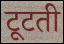
टूटती